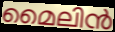
മൈലിൻ